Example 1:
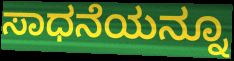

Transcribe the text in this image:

ಸಾಧನೆಯನ್ನೂ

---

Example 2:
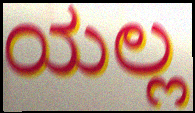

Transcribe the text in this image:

ಯಲ್ಲ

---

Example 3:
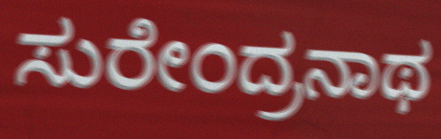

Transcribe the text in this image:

ಸುರೇಂದ್ರನಾಥ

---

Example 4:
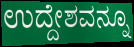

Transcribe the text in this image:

ಉದ್ದೇಶವನ್ನೂ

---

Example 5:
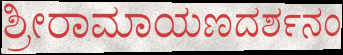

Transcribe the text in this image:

ಶ್ರೀರಾಮಾಯಣದರ್ಶನಂ